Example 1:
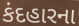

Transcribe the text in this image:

કંદહારના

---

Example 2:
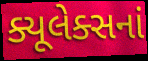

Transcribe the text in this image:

ક્યૂલેક્સનાં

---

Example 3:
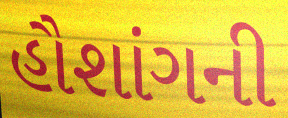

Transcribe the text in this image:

હૌશાંગની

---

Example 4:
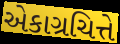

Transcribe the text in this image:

એકાગ્રચિત્તે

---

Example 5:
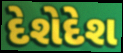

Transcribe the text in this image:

દેશેદેશ